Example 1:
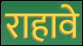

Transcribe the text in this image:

राहावे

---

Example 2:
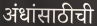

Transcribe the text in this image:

अंधांसाठीची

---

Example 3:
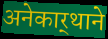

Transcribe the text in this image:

अनेकार्थाने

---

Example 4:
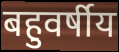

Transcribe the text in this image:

बहुवर्षीय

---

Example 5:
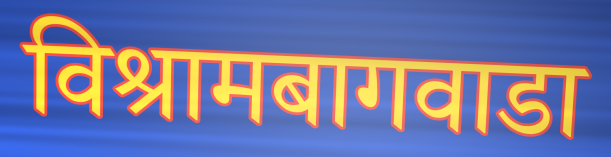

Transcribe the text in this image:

विश्रामबागवाडा